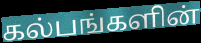
கல்பங்களின்